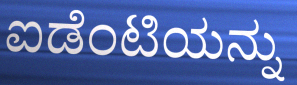
ಐಡೆಂಟಿಯನ್ನು